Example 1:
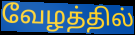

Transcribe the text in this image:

வேழத்தில்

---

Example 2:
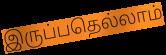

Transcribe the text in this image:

இருப்பதெல்லாம்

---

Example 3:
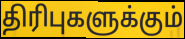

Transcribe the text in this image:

திரிபுகளுக்கும்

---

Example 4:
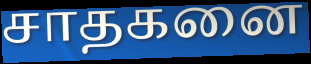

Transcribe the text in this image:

சாதகனை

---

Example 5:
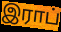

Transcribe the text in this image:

இராப்